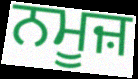
ਨਮੂਜ਼